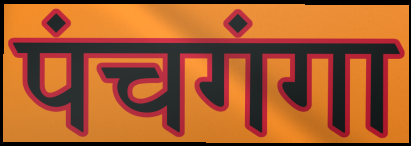
पंचगंगा